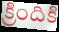
క్రిందికి